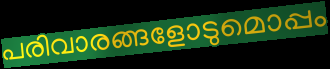
പരിവാരങ്ങളോടുമൊപ്പം